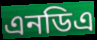
এনডিএ